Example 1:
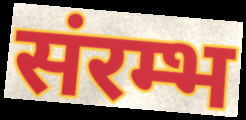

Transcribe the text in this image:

संरम्भ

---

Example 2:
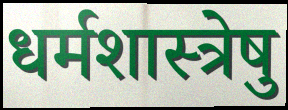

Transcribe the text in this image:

धर्मशास्त्रेषु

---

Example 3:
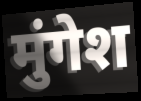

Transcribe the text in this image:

मुंगेश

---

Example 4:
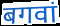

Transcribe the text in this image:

बगवां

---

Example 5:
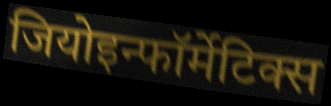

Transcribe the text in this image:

जियोइन्फॉर्मेटिक्स